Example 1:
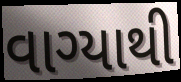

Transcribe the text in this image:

વાગ્યાથી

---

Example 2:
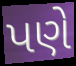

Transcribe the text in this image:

પણે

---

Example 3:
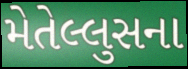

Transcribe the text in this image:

મેતેલ્લુસના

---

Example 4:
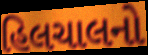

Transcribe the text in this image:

હિલચાલનો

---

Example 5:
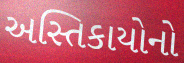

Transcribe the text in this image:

અસ્તિકાયોનો